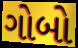
ગોબો